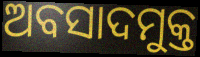
ଅବସାଦମୁକ୍ତ